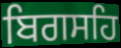
ਬਿਗਸਹਿ